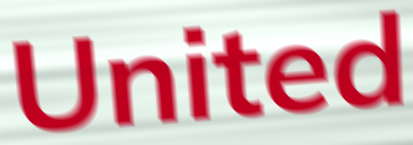
United